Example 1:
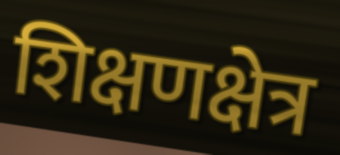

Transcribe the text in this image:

शिक्षणक्षेत्र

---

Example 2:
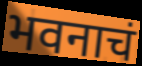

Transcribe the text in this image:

भवनाचं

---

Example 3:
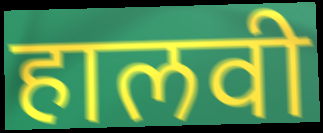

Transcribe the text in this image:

हालवी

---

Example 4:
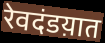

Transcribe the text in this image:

रेवदंडय़ात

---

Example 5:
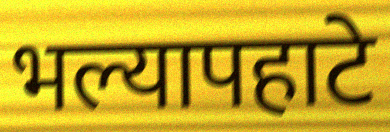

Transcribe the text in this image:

भल्यापहाटे